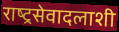
राष्ट्रसेवादलाशी